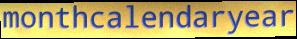
monthcalendaryear